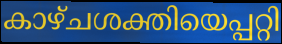
കാഴ്ചശക്തിയെപ്പറ്റി